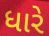
ધારે